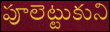
పూలెట్టుకుని